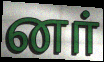
னர்